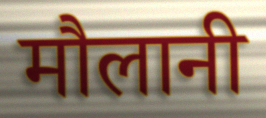
मौलानी